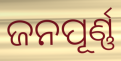
ଜନପୂର୍ଣ୍ଣ